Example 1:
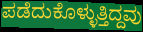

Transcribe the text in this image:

ಪಡೆದುಕೊಳ್ಳುತ್ತಿದ್ದವು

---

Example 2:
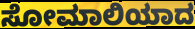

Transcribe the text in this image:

ಸೋಮಾಲಿಯಾದ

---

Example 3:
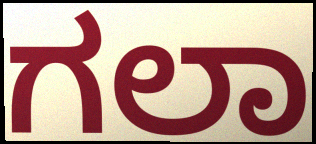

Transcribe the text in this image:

ಗಲಾ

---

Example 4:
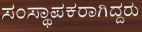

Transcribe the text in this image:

ಸಂಸ್ಥಾಪಕರಾಗಿದ್ದರು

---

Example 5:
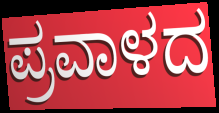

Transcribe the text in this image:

ಪ್ರವಾಳದ